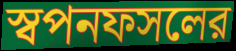
স্বপনফসলের